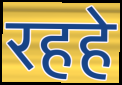
रहहे